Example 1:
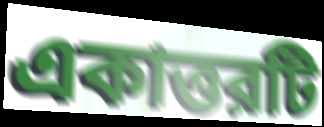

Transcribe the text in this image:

একাত্তরটি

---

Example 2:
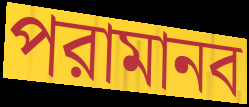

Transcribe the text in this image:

পরামানব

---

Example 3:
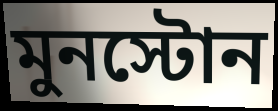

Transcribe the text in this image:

মুনস্টোন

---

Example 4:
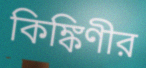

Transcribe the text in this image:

কিঙ্কিণীর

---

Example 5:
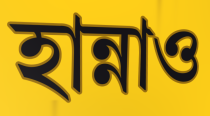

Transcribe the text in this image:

হান্নাও